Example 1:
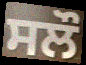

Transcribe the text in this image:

ਸਲੌ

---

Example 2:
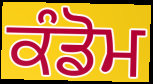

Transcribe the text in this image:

ਕੰਡੋਮ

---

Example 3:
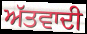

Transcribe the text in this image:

ਅੱਤਵਾਦੀ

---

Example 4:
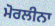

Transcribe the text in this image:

ਮੋਰਲੀਨਾ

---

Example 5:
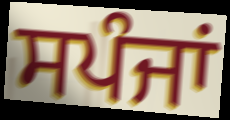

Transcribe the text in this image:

ਸਪੰਜਾਂ